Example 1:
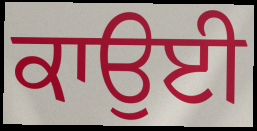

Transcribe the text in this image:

ਕਾਉਈ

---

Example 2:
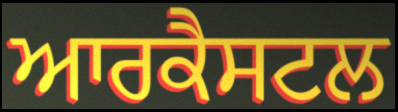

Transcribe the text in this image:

ਆਰਕੈਸਟਲ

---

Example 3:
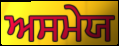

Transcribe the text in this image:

ਅਸਮੇਯ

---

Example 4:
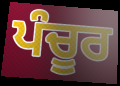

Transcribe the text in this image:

ਪੰਚੂਰ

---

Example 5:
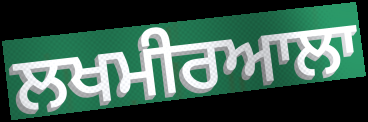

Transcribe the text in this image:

ਲਖਮੀਰਆਲਾ